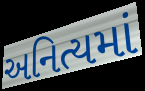
અનિત્યમાં